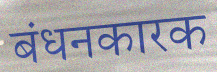
बंधनकारक